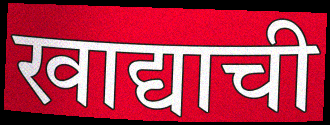
खाद्याची